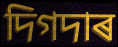
দিগদাৰ